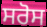
ਸਰੋਸ